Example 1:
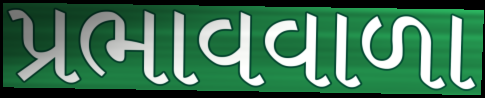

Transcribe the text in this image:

પ્રભાવવાળા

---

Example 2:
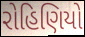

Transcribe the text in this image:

રોહિણિયો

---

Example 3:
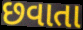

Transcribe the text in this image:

છવાતા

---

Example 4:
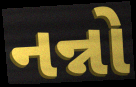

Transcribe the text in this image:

નન્નો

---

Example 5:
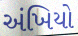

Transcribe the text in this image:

અંખિયો